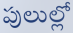
పులుల్లో